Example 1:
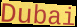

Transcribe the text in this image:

Dubai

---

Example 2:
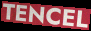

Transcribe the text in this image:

TENCEL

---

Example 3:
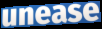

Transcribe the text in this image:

unease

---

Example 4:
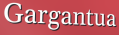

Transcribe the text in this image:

Gargantua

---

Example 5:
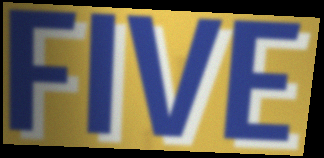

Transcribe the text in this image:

FIVE